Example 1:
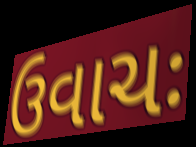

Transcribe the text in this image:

ઉવાચઃ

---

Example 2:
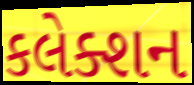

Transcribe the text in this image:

કલેક્શન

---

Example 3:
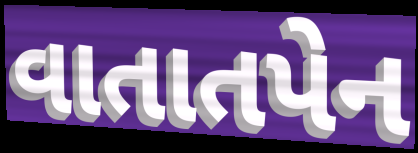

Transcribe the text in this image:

વાતાતપેન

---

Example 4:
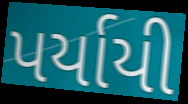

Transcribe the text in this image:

પર્યાયી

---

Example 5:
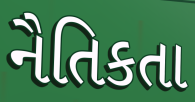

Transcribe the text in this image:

નૈતિકતા